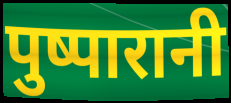
पुष्पारानी